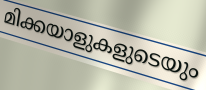
മിക്കയാളുകളുടെയും